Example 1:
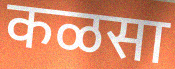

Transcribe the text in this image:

कळसा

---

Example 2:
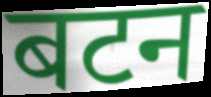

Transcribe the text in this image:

बटन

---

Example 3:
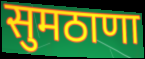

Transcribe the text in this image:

सुमठाणा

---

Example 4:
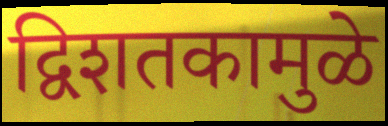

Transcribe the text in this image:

द्विशतकामुळे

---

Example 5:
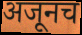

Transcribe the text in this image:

अजूनच